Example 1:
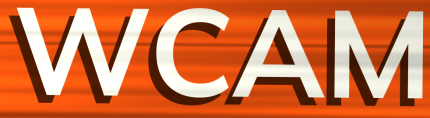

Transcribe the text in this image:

WCAM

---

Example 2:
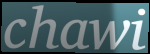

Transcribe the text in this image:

chawi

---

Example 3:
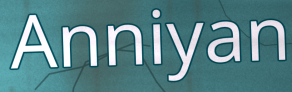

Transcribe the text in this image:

Anniyan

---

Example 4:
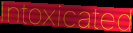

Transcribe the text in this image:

Intoxicated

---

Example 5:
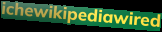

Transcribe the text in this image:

ichewikipediawired